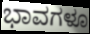
ಭಾವಗಳೂ